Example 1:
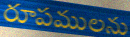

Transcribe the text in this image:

రూపములను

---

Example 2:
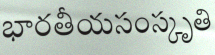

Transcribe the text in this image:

భారతీయసంస్కృతి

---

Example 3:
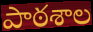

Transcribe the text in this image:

పాఠశాల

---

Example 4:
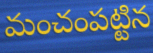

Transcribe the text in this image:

మంచంపట్టిన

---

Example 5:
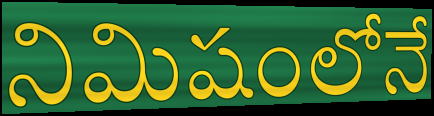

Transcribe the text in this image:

నిమిషంలోనే